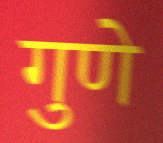
गुणे